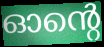
ഓന്റെ